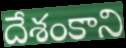
దేశంకాని